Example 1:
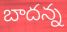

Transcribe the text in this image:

బాదన్న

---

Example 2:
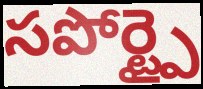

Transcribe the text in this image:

సపోర్ట్పై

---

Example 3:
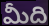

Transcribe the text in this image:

మీది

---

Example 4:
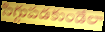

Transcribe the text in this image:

సిగ్గుపడకుండేలా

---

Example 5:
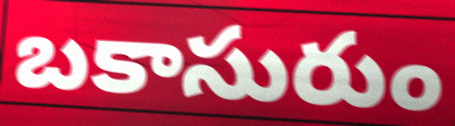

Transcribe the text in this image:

బకాసురుం